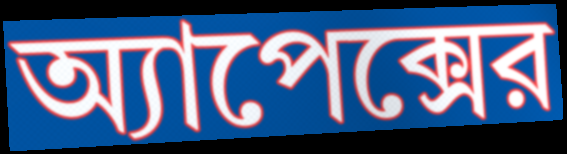
অ্যাপেক্সের